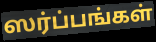
ஸர்ப்பங்கள்